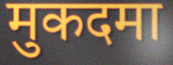
मुकदमा